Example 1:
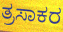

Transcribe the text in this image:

ತ್ರಸಾಕರ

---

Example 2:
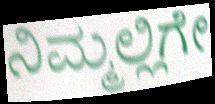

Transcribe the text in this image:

ನಿಮ್ಮಲ್ಲಿಗೇ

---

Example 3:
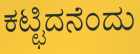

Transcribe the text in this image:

ಕಟ್ಟಿದನೆಂದು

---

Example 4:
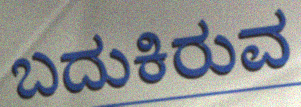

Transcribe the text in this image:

ಬದುಕಿರುವ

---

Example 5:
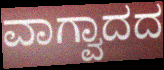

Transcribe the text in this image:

ವಾಗ್ವಾದದ